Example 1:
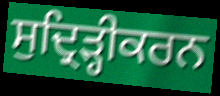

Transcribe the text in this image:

ਸੁਦ੍ਰਿੜ੍ਹੀਕਰਨ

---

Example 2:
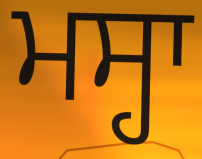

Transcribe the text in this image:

ਮਸ੍ਹਾ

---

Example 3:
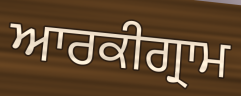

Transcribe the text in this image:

ਆਰਕੀਗ੍ਰਾਮ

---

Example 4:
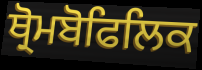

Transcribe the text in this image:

ਥ੍ਰੋਮਬੋਫਿਲਿਕ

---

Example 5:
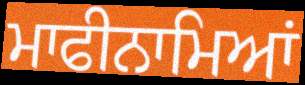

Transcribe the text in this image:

ਮਾਫੀਨਾਮਿਆਂ